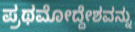
ಪ್ರಥಮೋದ್ದೇಶವನ್ನು